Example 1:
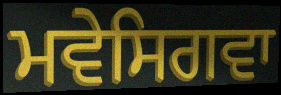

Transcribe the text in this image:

ਮਵੇਸਿਗਵਾ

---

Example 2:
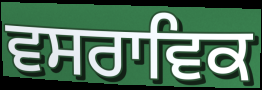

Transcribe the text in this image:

ਵਸਰਾਵਿਕ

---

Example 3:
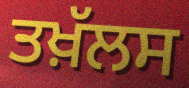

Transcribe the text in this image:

ਤਖ਼ੱਲਸ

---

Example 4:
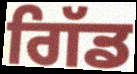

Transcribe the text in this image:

ਗਿੱਡ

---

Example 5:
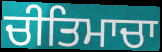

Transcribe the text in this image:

ਚੀਤਿਮਾਚਾ